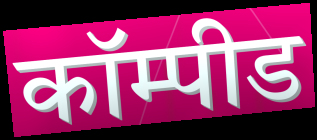
कॉम्पीड